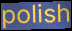
polish